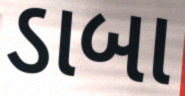
ડાબા